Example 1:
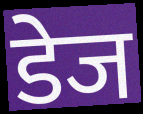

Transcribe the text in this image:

डेज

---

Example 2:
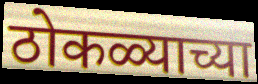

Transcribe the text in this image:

ठोकळ्याच्या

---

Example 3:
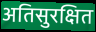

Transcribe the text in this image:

अतिसुरक्षित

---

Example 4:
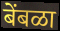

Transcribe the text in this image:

बेंबळा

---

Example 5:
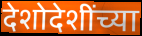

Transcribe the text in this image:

देशोदेशींच्या